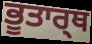
ਭੂਤਾਰ੍ਥ